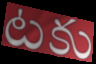
టకు